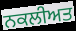
ਨਕਲੀਅਤ